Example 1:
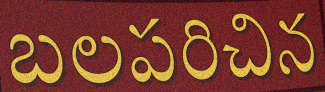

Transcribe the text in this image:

బలపరిచిన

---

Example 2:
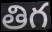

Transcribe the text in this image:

తిగ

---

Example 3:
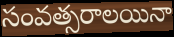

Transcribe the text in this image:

సంవత్సరాలయినా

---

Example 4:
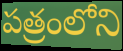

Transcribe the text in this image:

పత్రంలోని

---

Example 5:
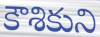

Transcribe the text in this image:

కౌశికుని